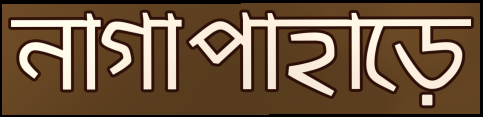
নাগাপাহাড়ে